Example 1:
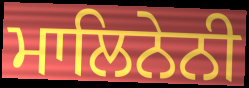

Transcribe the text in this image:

ਮਾਲਿਨੇਨੀ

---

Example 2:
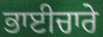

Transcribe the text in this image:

ਭਾਈਚਾਰੇ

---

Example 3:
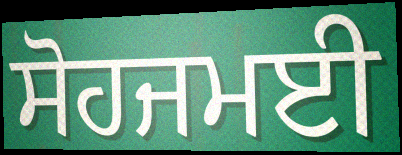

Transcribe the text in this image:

ਸੋਹਜਮਈ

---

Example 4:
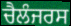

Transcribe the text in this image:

ਚੈਲੰਜਰਸ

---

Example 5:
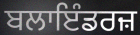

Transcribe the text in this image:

ਬਲਾਇੰਡਰਜ਼